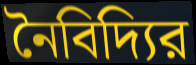
নৈবিদ্যির